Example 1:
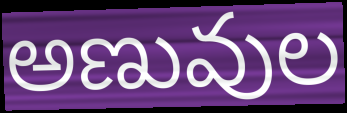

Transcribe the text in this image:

అణువుల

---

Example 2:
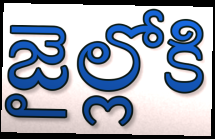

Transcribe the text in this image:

జైల్లోకి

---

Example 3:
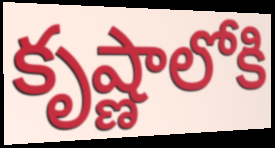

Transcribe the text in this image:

కృష్ణాలోకి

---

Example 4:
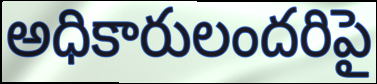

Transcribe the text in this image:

అధికారులందరిపై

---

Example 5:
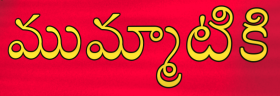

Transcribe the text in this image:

ముమ్మాటికి